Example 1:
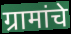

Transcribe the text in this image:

ग्रामांचे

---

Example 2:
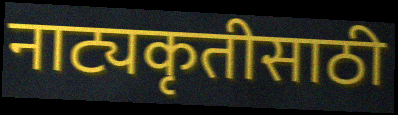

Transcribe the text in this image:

नाट्यकृतीसाठी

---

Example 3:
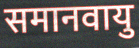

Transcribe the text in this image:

समानवायु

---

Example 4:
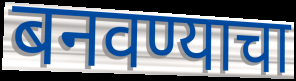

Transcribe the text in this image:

बनवण्याचा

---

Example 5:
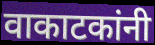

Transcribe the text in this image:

वाकाटकांनी